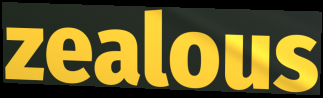
zealous